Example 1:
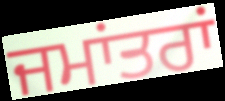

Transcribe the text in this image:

ਜਮਾਂਤਰਾਂ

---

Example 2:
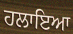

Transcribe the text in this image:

ਹਲਾਇਆ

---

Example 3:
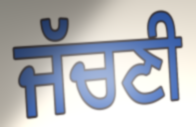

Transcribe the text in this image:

ਜੱਚਣੀ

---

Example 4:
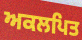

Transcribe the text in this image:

ਅਕਲਪਿਤ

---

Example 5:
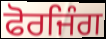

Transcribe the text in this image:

ਫੋਰਜਿੰਗ